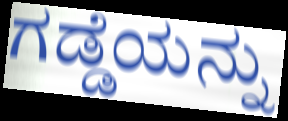
ಗಡ್ಡೆಯನ್ನು